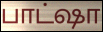
பாட்ஷா